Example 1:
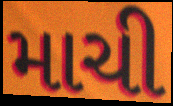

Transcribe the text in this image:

માચી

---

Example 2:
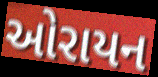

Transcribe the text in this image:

ઓરાયન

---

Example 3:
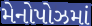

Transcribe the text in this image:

મેનોપોઝમાં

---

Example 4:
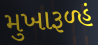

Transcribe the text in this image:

મુખારૂળ્હં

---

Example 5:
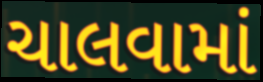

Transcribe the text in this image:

ચાલવામાં